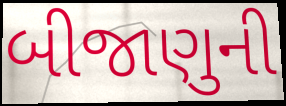
બીજાણુની